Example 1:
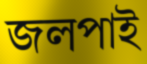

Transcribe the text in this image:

জলপাই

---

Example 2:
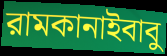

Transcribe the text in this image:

রামকানাইবাবু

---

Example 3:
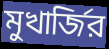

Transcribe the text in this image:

মুখার্জির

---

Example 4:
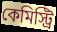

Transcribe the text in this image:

কেমিস্ট্রি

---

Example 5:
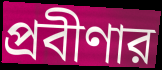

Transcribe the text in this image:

প্রবীণার